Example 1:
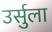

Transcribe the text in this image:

उर्सुला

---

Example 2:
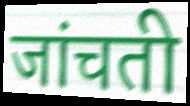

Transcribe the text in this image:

जांचती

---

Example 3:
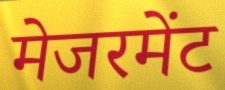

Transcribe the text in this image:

मेजरमेंट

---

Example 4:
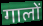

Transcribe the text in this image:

गालों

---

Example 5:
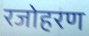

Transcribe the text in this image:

रजोहरण